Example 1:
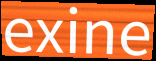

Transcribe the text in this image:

exine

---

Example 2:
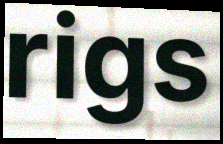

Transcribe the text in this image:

rigs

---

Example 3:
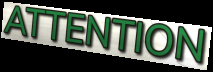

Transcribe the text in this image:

ATTENTION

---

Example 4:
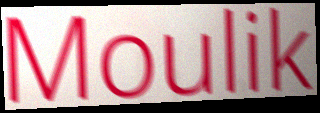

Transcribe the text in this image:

Moulik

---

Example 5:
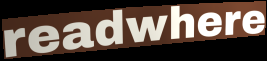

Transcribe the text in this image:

readwhere